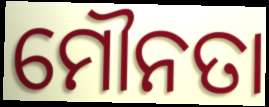
ମୌନତା